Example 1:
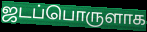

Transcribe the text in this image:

ஜடப்பொருளாக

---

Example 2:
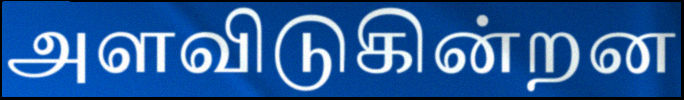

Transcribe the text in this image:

அளவிடுகின்றன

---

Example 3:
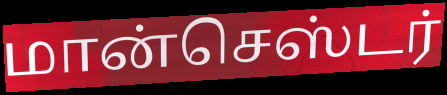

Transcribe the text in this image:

மான்செஸ்டர்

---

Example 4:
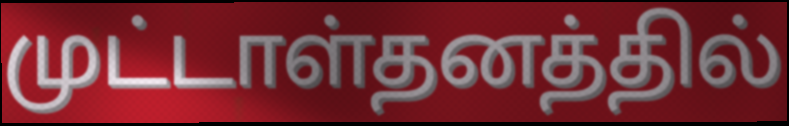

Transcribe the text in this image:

முட்டாள்தனத்தில்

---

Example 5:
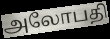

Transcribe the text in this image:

அலோபதி